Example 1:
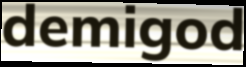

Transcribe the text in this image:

demigod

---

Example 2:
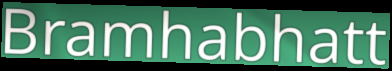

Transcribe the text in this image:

Bramhabhatt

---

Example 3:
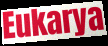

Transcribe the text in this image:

Eukarya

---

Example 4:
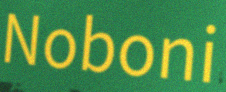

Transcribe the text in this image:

Noboni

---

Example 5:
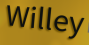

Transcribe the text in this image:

Willey